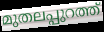
മുതലപ്പുറത്ത്